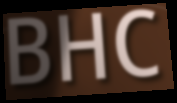
BHC